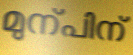
മുന്പിന്